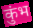
कुंभ